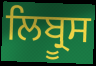
ਲਿਬ੍ਰੂਸ